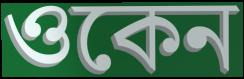
ওকেন